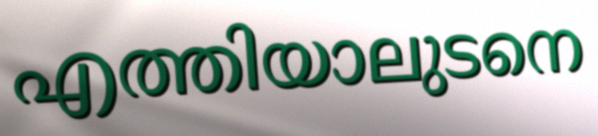
എത്തിയാലുടനെ